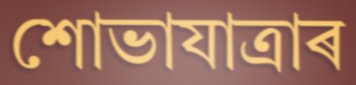
শোভাযাত্ৰাৰ